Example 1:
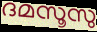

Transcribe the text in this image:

ദമസൂസു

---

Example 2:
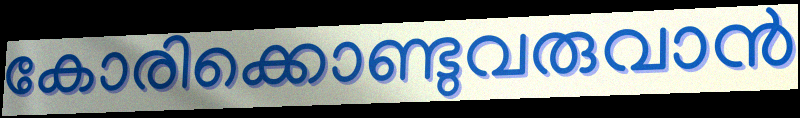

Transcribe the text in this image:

കോരിക്കൊണ്ടുവരുവാൻ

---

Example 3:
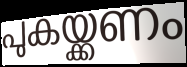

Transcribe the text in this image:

പുകയ്ക്കണം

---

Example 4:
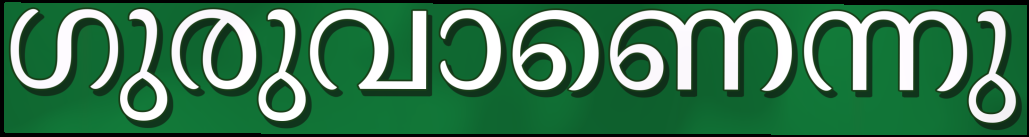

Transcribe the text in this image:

ഗുരുവാണെന്നു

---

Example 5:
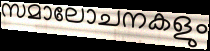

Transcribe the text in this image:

സമാലോചനകളും